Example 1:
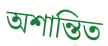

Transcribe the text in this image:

অশান্তিত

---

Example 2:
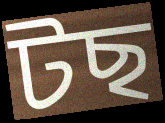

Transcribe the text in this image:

টছ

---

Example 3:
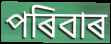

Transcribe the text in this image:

পৰিবাৰ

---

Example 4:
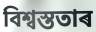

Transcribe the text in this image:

বিশ্বস্ততাৰ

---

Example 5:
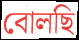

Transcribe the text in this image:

বোলছি